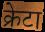
क्रेटा